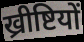
ख्रीष्टियों